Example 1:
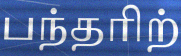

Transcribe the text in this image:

பந்தரிற்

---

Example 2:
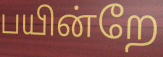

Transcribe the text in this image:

பயின்றே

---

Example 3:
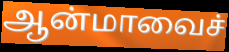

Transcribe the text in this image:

ஆன்மாவைச்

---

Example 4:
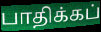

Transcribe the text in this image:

பாதிக்கப்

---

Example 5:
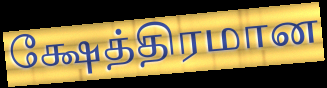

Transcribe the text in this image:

க்ஷேத்திரமான